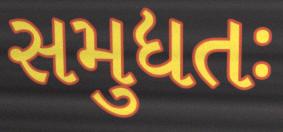
સમુદ્યતઃ